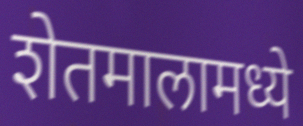
शेतमालामध्ये